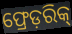
ଫ୍ରେଡ଼ରିକ୍